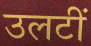
उलटीं